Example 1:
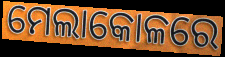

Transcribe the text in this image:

ମେଲାକୋଳରେ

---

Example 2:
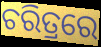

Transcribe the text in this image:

ଚରିତ୍ରରେ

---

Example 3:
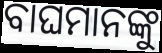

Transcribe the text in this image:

ବାଘମାନଙ୍କୁ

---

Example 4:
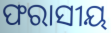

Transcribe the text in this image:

ଫରାସୀୟ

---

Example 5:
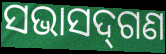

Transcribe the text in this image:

ସଭାସଦ୍‌ଗଣ